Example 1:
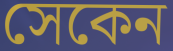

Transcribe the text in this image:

সেকেন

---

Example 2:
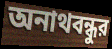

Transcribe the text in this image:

অনাথবন্ধুর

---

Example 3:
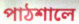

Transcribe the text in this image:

পাঠশালে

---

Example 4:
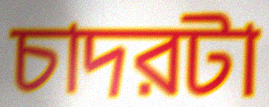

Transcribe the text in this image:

চাদরটা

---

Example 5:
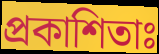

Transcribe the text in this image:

প্রকাশিতাঃ